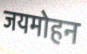
जयमोहन